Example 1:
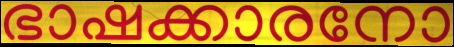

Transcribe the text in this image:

ഭാഷക്കാരനോ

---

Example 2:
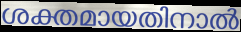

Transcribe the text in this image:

ശക്തമായതിനാൽ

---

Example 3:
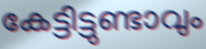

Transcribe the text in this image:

കേട്ടിട്ടുണ്ടാവും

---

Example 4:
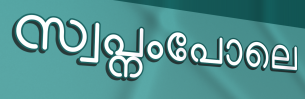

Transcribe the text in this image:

സ്വപ്നംപോലെ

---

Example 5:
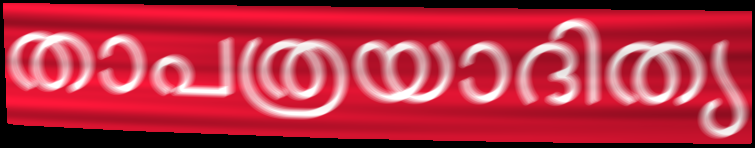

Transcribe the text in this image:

താപത്രയാദിത്യ